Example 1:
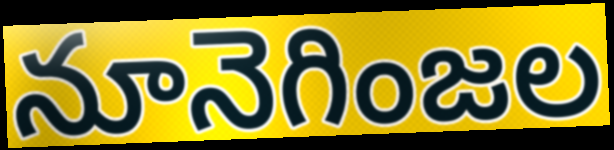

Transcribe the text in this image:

నూనెగింజల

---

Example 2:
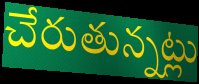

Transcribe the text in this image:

చేరుతున్నట్లు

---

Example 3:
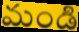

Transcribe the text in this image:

మండి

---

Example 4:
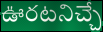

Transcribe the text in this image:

ఊరటనిచ్చే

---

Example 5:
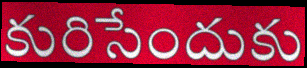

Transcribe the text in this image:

కురిసేందుకు